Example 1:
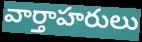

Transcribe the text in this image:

వార్తాహరులు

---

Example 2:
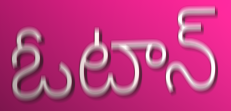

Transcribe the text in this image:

ఓటాన్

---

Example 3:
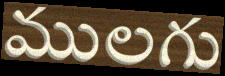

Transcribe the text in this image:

ములగు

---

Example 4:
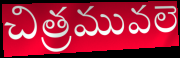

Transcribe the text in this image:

చిత్రమువలె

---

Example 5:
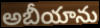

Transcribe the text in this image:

అబీయాను